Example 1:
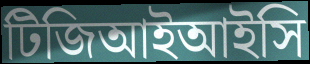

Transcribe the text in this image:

টিজিআইআইসি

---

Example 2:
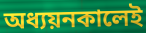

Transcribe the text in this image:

অধ্যয়নকালেই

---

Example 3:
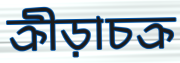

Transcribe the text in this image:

ক্রীড়াচক্র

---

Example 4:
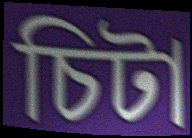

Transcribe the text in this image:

চিটা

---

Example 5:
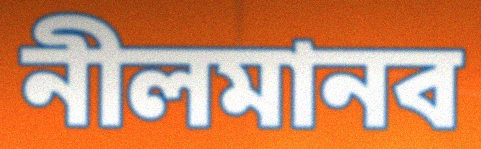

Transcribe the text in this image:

নীলমানব